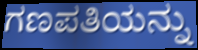
ಗಣಪತಿಯನ್ನು